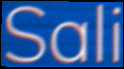
Sali